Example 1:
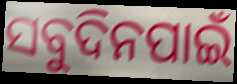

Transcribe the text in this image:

ସବୁଦିନପାଇଁ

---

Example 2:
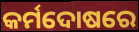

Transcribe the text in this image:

କର୍ମଦୋଷରେ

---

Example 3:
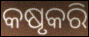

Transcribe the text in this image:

କଷୃକରି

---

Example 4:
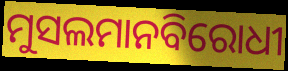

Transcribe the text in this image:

ମୁସଲମାନବିରୋଧୀ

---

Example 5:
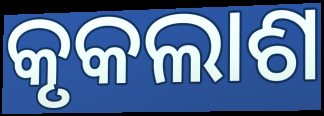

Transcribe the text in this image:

କୃକଲାଶ